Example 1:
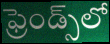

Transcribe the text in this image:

ఫ్రెండ్స్‌లో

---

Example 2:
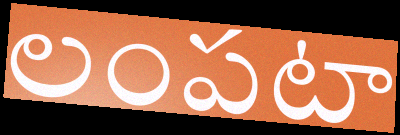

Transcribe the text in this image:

లంపటా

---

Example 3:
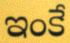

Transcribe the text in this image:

ఇంకే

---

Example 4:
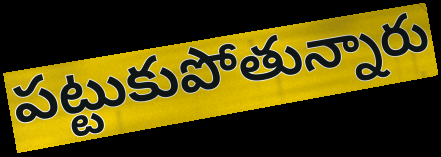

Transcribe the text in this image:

పట్టుకుపోతున్నారు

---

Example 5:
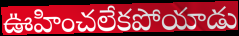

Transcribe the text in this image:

ఊహించలేకపోయాడు